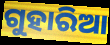
ଗୁହାରିଆ